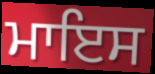
ਮਾਇਸ